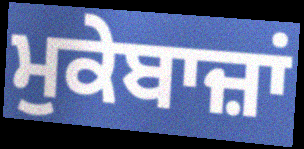
ਮੁਕੇਬਾਜ਼ਾਂ